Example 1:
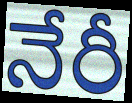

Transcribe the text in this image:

నేరీ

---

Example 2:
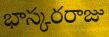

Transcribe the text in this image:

భాస్కరరాజు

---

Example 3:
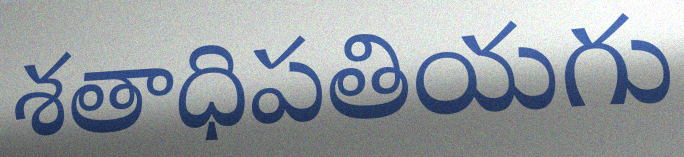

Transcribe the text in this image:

శతాధిపతియగు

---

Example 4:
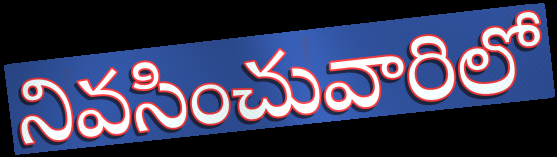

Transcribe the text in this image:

నివసించువారిలో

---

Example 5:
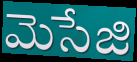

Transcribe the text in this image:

మెసేజి